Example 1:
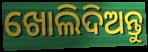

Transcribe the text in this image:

ଖୋଲିଦିଅନ୍ତୁ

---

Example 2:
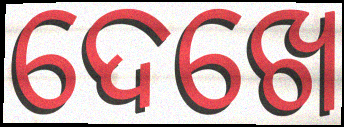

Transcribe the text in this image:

ଦେଖେ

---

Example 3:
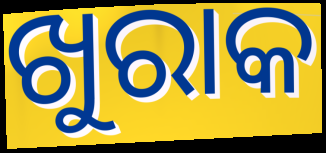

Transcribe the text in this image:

ଖୁରାକ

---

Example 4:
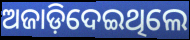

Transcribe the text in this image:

ଅଜାଡ଼ିଦେଇଥିଲେ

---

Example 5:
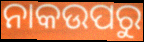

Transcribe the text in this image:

ନାକଉପରୁ